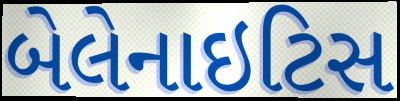
બેલેનાઇટિસ